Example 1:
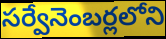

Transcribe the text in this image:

సర్వేనెంబర్లలోని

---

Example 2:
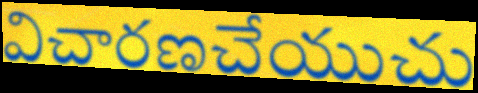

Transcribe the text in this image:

విచారణచేయుచు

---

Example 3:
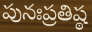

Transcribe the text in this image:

పునఃప్రతిష్ఠ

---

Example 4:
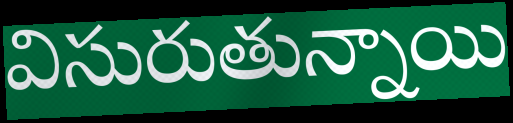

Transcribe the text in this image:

విసురుతున్నాయి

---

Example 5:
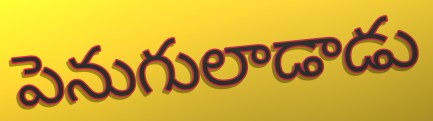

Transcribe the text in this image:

పెనుగులాడాడు